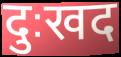
दुःखद